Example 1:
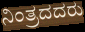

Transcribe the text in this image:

ನಿಂತ್ರದದರು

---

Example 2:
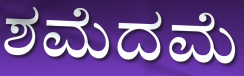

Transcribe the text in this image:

ಶಮೆದಮೆ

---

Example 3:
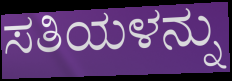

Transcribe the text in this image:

ಸತಿಯಳನ್ನು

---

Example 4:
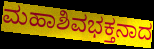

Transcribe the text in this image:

ಮಹಾಶಿವಭಕ್ತನಾದ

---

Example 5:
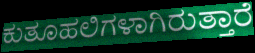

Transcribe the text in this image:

ಕುತೂಹಲಿಗಳಾಗಿರುತ್ತಾರೆ